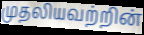
முதலியவற்றின்